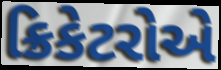
ક્રિકેટરોએ